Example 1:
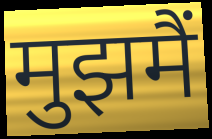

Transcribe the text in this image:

मुझमैं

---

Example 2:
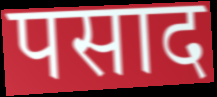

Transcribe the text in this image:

पसाद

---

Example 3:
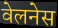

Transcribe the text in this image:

वेलनेस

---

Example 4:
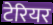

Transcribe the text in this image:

टेरियर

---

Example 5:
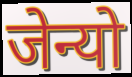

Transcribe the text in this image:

जेन्यो